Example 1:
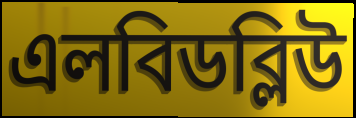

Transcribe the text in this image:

এলবিডব্লিউ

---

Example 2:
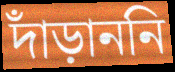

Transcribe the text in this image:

দাঁড়াননি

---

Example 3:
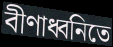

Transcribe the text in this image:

বীণাধ্বনিতে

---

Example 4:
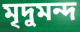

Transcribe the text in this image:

মৃদুমন্দ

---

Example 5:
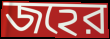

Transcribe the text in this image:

জহের